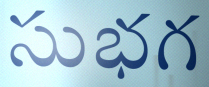
సుభగ